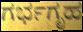
ಗರ್ಭಗೃಹ